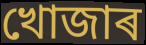
খোজাৰ